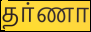
தர்ணா